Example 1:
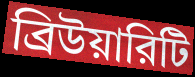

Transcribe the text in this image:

ব্রিউয়ারিটি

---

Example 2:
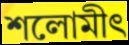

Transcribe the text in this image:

শলোমীৎ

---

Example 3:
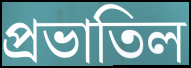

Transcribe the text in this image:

প্রভাতিল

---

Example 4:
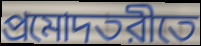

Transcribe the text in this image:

প্রমোদতরীতে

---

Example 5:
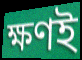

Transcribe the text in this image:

ক্ষণই